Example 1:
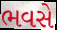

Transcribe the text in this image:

ભવસે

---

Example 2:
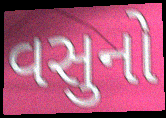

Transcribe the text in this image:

વસુનો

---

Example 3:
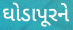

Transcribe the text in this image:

ઘોડાપૂરને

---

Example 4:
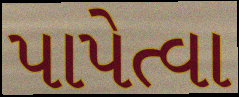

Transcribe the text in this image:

પાપેત્વા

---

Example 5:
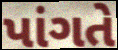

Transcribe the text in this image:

પાંગતે